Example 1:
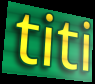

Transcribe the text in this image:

titi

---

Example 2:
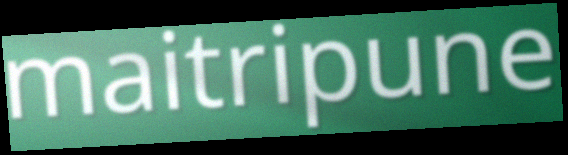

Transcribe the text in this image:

maitripune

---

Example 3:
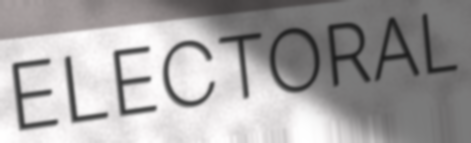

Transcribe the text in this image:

ELECTORAL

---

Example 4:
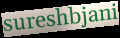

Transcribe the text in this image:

sureshbjani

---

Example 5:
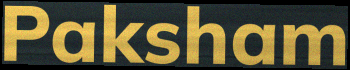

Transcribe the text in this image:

Paksham